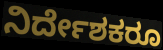
ನಿರ್ದೇಶಕರೂ